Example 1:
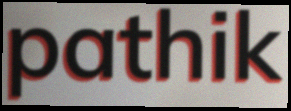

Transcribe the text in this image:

pathik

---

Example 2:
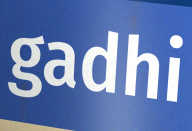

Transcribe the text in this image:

gadhi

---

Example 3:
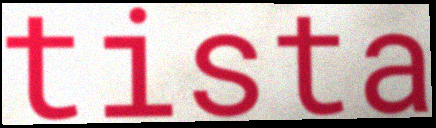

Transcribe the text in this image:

tista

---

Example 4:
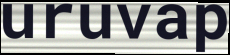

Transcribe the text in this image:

uruvap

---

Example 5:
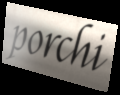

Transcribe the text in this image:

porchi